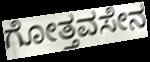
ಗೋತ್ತವಸೇನ